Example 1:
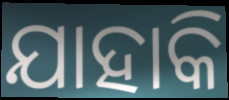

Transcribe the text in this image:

ଯାହାକି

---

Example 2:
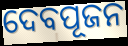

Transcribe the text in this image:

ଦେବପୂଜନ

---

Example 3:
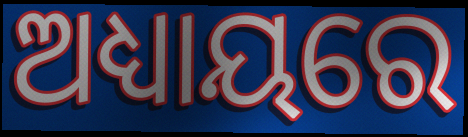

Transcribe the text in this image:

ଅଧ୍ୟାୟରେ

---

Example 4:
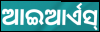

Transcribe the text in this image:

ଆଇଆର୍ଏସ୍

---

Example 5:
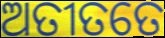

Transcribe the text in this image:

ଅତୀତତେ